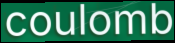
coulomb